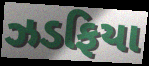
ઝડફિયા